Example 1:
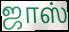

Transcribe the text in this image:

ஜாஸ்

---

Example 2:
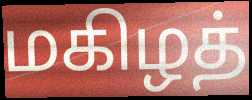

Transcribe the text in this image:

மகிழத்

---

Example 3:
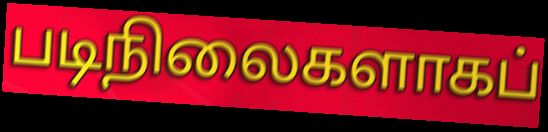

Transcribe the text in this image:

படிநிலைகளாகப்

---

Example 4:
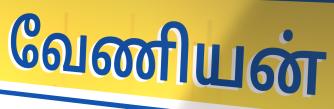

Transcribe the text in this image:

வேணியன்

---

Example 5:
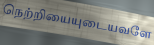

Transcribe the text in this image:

நெற்றியையுடையவளே